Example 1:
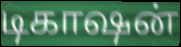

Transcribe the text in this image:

டிகாஷன்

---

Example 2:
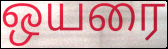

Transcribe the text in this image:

ஒயரை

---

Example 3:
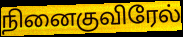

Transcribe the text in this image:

நினைகுவிரேல்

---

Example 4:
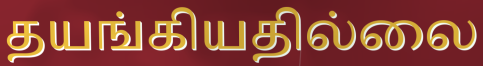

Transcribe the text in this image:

தயங்கியதில்லை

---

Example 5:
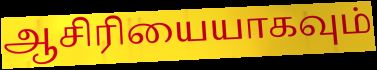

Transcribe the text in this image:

ஆசிரியையாகவும்